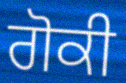
ਗੋਕੀ